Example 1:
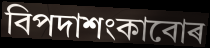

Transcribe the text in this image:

বিপদাশংকাবোৰ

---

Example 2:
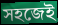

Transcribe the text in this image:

সহজেই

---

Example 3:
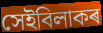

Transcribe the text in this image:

সেইবিলাকৰ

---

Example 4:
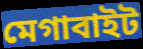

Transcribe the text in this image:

মেগাবাইট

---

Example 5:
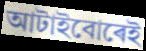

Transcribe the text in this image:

আটাইবোৰেই